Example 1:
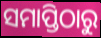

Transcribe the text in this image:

ସମାପ୍ତିଠାରୁ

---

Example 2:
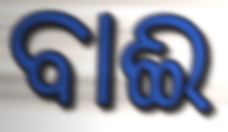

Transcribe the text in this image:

ବାଈ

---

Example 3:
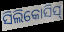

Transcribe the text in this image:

ସିଲିକୋସିସ୍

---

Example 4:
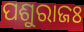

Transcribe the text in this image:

ପଶୁରାଜଃ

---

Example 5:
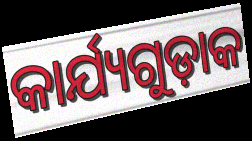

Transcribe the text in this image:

କାର୍ଯ୍ୟଗୁଡ଼ାକ